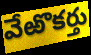
వేఱొకర్తు